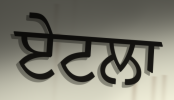
ਏਟਲਾ